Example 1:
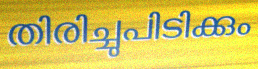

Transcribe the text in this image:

തിരിച്ചുപിടിക്കും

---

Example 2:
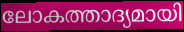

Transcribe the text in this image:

ലോകത്താദ്യമായി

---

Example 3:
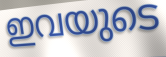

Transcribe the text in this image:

ഇവയുടെ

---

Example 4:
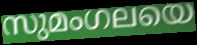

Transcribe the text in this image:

സുമംഗലയെ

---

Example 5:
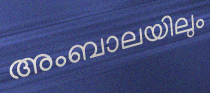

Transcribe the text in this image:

അംബാലയിലും